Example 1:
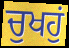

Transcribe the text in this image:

ਚੁਖਹੁਂ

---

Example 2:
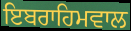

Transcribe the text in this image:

ਇਬਰਾਹਿਮਵਾਲ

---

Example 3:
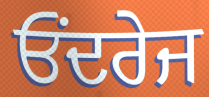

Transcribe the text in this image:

ਓਂਦਰੇਜ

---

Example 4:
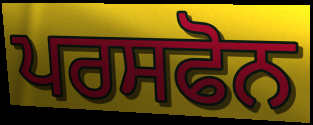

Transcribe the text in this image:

ਪਰਸਫੋਨ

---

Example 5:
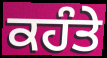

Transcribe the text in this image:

ਕਹੰਤੇ